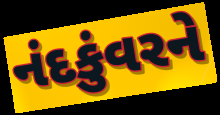
નંદકુંવરને